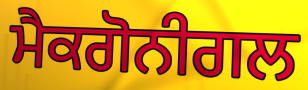
ਮੈਕਗੋਨੀਗਲ